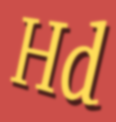
Hd